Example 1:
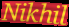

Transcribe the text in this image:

Nikhil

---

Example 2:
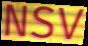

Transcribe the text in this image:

NSV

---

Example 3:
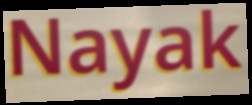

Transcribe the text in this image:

Nayak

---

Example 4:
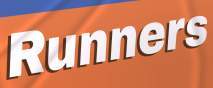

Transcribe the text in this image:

Runners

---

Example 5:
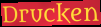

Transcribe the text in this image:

Drucken